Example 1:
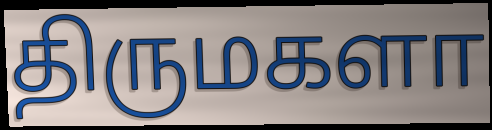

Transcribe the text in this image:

திருமகளா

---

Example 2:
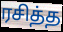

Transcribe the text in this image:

ரசித்த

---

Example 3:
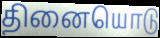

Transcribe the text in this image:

தினையொடு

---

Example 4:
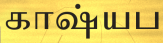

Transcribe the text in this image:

காஷ்யப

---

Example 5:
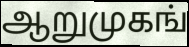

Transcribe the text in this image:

ஆறுமுகங்